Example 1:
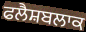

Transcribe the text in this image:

ਫਲੈਸ਼ਬਲਾਕ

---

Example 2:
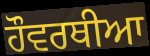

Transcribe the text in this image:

ਹੌਵਰਥੀਆ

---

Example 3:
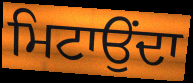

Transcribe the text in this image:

ਮਿਟਾਉਂਦਾ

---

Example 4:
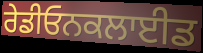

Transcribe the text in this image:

ਰੇਡੀਓਨਕਲਾਈਡ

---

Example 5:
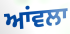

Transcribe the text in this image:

ਆਂਵਲਾ